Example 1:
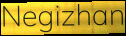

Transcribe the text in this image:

Negizhan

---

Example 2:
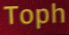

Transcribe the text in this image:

Toph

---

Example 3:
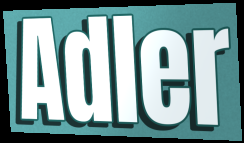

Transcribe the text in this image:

Adler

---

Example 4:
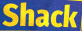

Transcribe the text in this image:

Shack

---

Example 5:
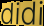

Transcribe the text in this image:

didi